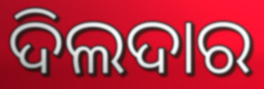
ଦିଲଦାର